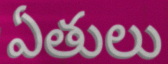
ఏతులు